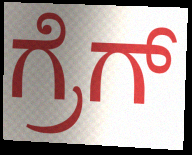
ಗ್ರೆಗ್